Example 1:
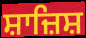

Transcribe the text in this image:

ਸ਼ਾਜ਼ਿਸ਼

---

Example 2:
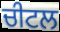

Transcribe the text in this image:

ਚੀਟਲ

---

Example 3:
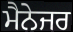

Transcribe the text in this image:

ਮੈਨੇਜਰ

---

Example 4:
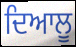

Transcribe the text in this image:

ਦਿਆਲੂ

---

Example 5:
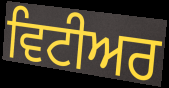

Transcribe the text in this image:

ਵਿਟੀਅਰ